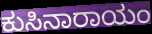
ಕುಸಿನಾರಾಯಂ